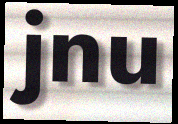
jnu